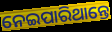
ନେଇପାରିଥାନ୍ତେ